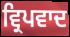
ਵ੍ਰਿਪਵਾਦ